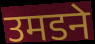
उमडने